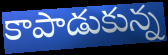
కాపాడుకున్న